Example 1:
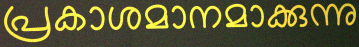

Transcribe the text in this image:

പ്രകാശമാനമാക്കുന്നു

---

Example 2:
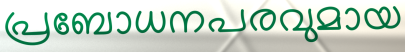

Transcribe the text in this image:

പ്രബോധനപരവുമായ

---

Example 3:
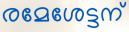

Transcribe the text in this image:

രമേശേട്ടന്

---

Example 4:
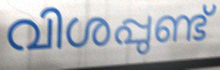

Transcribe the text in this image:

വിശപ്പുണ്ട്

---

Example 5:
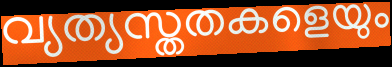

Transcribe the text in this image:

വ്യത്യസ്തതകളെയും